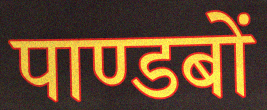
पाण्डबों